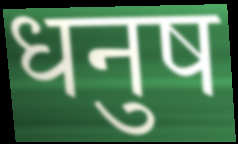
धनुष